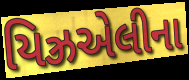
યિઝ્રએલીના